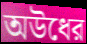
অউধের